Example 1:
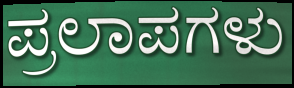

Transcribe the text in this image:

ಪ್ರಲಾಪಗಳು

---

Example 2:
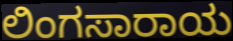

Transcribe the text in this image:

ಲಿಂಗಸಾರಾಯ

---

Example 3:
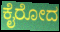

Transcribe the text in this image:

ಕೈರೋದ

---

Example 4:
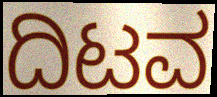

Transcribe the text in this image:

ದಿಟವ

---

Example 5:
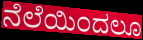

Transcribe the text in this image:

ನೆಲೆಯಿಂದಲೂ